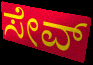
ಸೇವ್